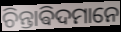
ଚିନ୍ତାଵିଦମାନେ